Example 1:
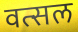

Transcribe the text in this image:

वत्सल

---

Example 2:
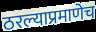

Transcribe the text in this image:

ठरल्याप्रमाणेच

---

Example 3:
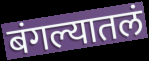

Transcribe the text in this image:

बंगल्यातलं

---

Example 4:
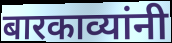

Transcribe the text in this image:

बारकाव्यांनी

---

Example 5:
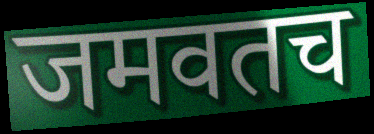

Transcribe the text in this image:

जमवतच